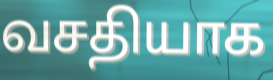
வசதியாக